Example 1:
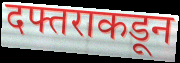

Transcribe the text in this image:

दफ्तराकडून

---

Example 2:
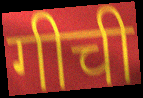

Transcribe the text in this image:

गीची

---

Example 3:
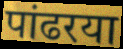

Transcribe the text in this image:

पांढरया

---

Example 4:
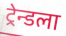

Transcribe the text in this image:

ट्रेन्डला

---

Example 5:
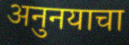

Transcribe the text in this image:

अनुनयाचा